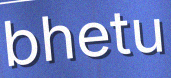
bhetu